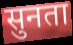
सुनता